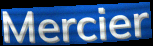
Mercier